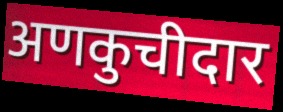
अणकुचीदार